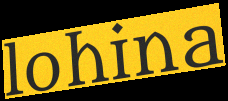
lohina